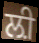
ਲ਼ੀ